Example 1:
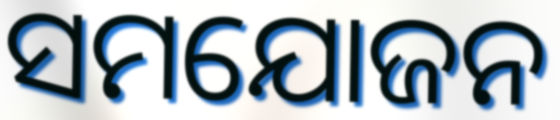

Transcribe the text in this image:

ସମଯୋଜନ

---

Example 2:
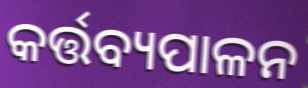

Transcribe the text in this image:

କର୍ତ୍ତବ୍ୟପାଳନ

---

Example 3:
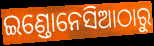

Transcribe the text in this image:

ଇଣ୍ଡୋନେସିଆଠାରୁ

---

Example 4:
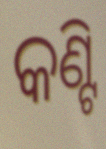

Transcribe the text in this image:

କଣ୍ଟି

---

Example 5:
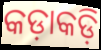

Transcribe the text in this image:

କଡ଼ାକଡ଼ି